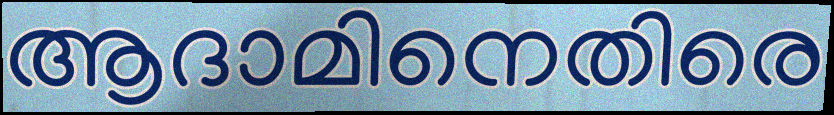
ആദാമിനെതിരെ